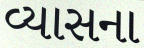
વ્યાસના